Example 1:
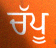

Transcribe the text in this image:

ਚੱਪੂ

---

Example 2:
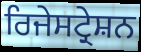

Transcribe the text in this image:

ਰਿਜੇਸਟ੍ਰੇਸ਼ਨ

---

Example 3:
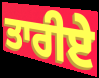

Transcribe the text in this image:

ਤਾਰੀਏ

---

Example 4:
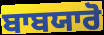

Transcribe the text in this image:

ਬਾਬਯਾਰੋ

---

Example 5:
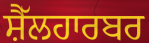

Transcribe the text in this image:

ਸ਼ੈੱਲਹਾਰਬਰ